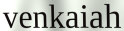
venkaiah